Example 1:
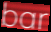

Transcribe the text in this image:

bar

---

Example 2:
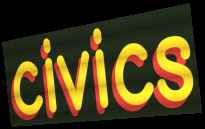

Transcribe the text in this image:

civics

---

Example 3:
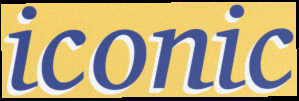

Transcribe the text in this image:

iconic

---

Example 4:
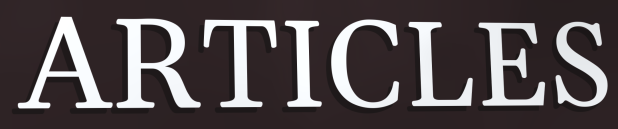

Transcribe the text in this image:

ARTICLES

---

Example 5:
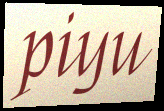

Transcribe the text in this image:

piyu